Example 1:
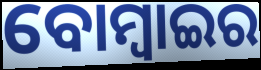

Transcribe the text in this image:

ବୋମ୍ବାଇର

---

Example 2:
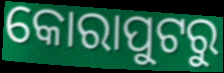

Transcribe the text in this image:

କୋରାପୁଟରୁ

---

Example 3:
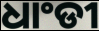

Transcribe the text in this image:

ଧାଂଡୀ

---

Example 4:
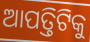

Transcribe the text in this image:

ଆପତ୍ତିଟିକୁ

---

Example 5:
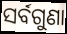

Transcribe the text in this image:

ସର୍ବଗୁଣା